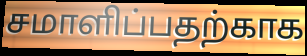
சமாளிப்பதற்காக